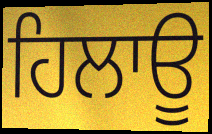
ਹਿਲਾਊ